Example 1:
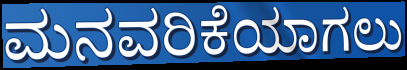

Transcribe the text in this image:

ಮನವರಿಕೆಯಾಗಲು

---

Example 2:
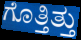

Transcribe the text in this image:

ಗೊತ್ತಿತ್ತು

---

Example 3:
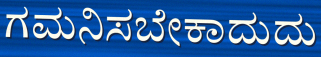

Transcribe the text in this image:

ಗಮನಿಸಬೇಕಾದುದು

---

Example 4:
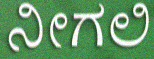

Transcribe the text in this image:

ನೀಗಲಿ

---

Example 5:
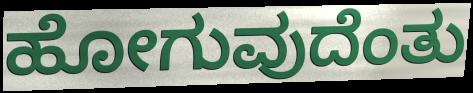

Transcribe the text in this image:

ಹೋಗುವುದೆಂತು